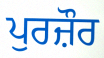
ਪੁਰਜ਼ੌਰ